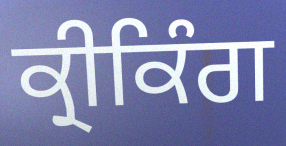
ਕ੍ਰੀਕਿੰਗ